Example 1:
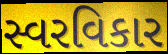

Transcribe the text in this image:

સ્વરવિકાર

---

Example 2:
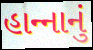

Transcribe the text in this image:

હાન્‍નાનું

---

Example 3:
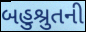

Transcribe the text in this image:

બહુશ્રુતની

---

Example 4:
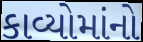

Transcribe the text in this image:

કાવ્યોમાંનો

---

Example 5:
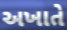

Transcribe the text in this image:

અખાતે